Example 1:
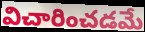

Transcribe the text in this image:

విచారించడమే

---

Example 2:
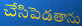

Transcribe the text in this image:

చేసిపెడతాను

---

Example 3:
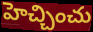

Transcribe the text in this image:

హెచ్చించు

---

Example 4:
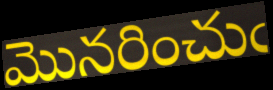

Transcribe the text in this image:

మొనరించుఁ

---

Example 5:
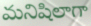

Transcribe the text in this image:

మనిషిలాగా